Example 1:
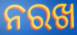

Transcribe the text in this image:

ନରଖ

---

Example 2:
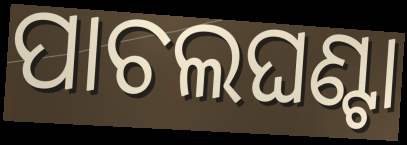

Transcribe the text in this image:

ପାଚଲଘଣ୍ଟା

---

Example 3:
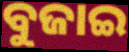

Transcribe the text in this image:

ବୁଜାଇ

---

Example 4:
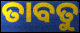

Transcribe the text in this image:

ତାବତୁ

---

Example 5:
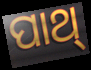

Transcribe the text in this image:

ପାଥ୍